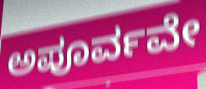
ಅಪೂರ್ವವೇ